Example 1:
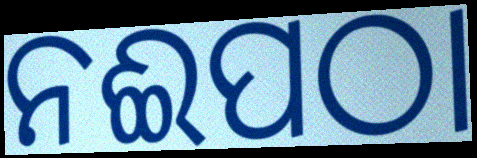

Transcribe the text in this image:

ନଈପଠା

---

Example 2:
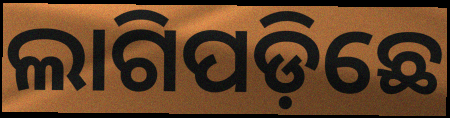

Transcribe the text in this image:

ଲାଗିପଡ଼ିଛେ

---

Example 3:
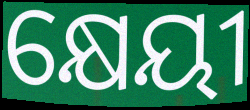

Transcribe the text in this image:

କ୍ଷେୟୀ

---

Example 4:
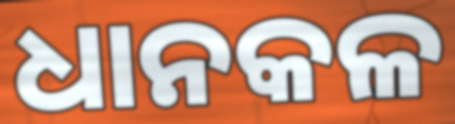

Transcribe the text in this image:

ଧାନକଳ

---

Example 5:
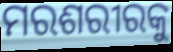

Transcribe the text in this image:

ମରଶରୀରକୁ